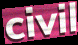
civil